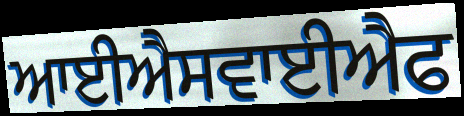
ਆਈਐਸਵਾਈਐਫ